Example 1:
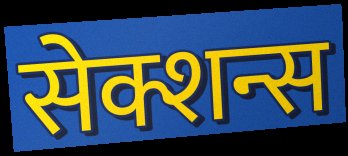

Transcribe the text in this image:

सेक्शन्स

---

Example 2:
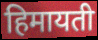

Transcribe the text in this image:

हिमायती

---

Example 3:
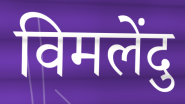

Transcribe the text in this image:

विमलेंदु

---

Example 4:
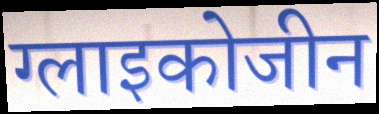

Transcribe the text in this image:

ग्लाइकोजीन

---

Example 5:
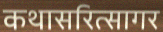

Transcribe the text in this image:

कथासरित्सागर